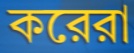
করেরা